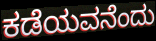
ಕಡೆಯವನೆಂದು